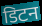
डिटन